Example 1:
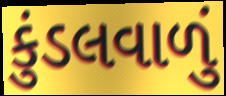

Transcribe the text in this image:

કુંડલવાળું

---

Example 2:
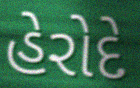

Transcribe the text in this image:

હેરોદે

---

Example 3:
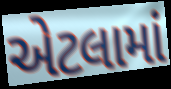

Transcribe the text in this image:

એટલામાં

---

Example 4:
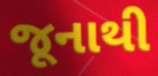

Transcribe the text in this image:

જૂનાથી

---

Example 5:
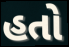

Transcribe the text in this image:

હતો